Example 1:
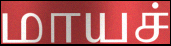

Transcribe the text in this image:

மாயச்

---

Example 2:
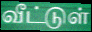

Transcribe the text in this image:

வீட்டுள்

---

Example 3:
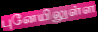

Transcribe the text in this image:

புனேயிலுள்ள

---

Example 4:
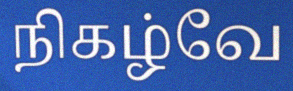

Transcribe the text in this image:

நிகழ்வே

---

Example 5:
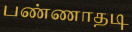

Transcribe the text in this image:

பண்ணாதடி